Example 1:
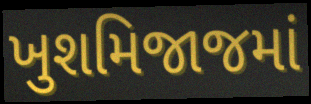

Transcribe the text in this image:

ખુશમિજાજમાં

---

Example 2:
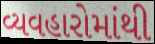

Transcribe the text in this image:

વ્યવહારોમાંથી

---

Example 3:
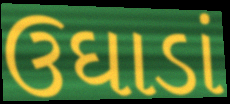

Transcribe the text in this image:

ઉઘાડાં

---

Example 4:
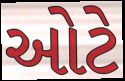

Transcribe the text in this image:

ઓટે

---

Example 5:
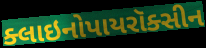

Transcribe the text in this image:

ક્લાઇનોપાયરૉક્સીન